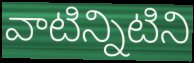
వాటిన్నిటిని